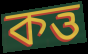
কত্ত